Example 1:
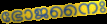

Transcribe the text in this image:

ഭോജനൈഃ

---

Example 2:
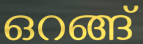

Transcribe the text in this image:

ഒറങ്ങ്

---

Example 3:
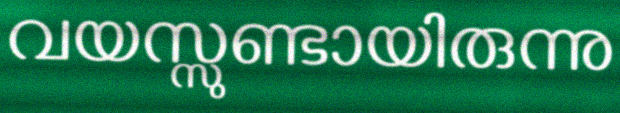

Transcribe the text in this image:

വയസ്സുണ്ടായിരുന്നു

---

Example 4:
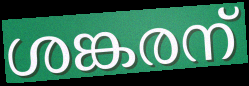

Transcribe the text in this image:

ശങ്കരന്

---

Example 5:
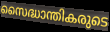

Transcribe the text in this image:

സൈദ്ധാന്തികരുടെ